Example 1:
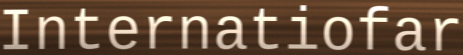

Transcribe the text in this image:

Internatiofar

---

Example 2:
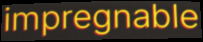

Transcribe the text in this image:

impregnable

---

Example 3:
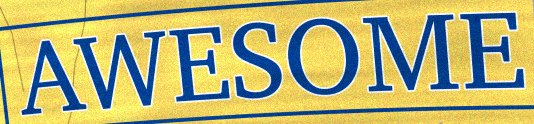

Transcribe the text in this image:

AWESOME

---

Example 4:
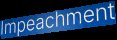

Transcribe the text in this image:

Impeachment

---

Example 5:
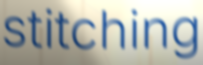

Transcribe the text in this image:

stitching